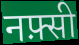
नफ़्सी